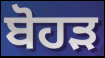
ਬੋਹੜ